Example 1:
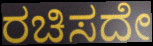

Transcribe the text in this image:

ರಚಿಸದೇ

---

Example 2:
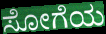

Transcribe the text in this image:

ಸೋಗೆಯ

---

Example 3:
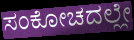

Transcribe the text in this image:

ಸಂಕೋಚದಲ್ಲೇ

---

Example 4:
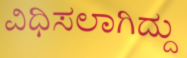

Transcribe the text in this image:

ವಿಧಿಸಲಾಗಿದ್ದು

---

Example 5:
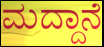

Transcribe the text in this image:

ಮದ್ದಾನೆ